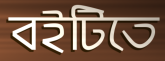
বইটিতে